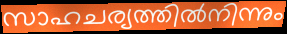
സാഹചര്യത്തിൽനിന്നും